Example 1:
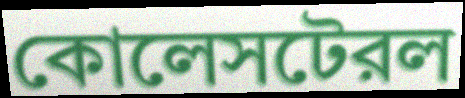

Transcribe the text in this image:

কোলেসটেরল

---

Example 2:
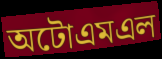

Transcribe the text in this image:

অটোএমএল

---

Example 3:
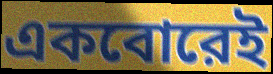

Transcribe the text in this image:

একবোরেই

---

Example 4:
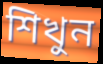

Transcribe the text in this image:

শিখুন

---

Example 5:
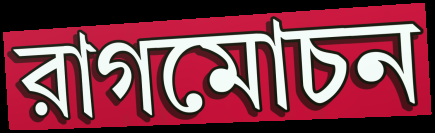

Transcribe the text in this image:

রাগমোচন